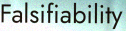
Falsifiability